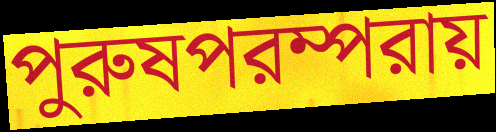
পুরুষপরম্পরায়